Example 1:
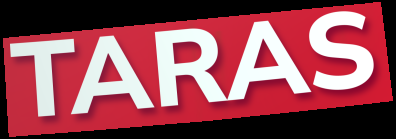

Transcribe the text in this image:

TARAS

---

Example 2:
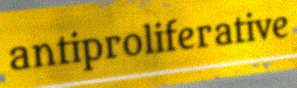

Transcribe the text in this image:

antiproliferative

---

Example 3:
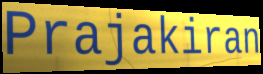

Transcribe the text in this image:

Prajakiran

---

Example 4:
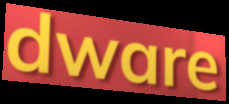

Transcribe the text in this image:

dware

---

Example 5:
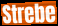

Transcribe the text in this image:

Strebe